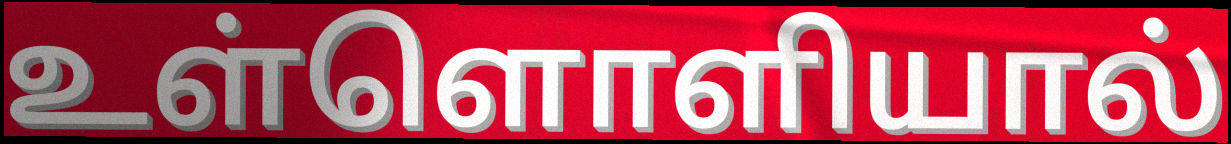
உள்ளொளியால்